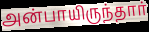
அன்பாயிருந்தார்